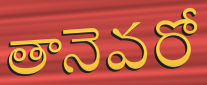
తానెవరో